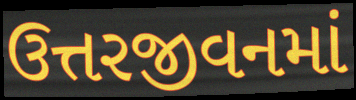
ઉત્તરજીવનમાં